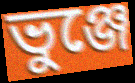
ভুঞ্জে